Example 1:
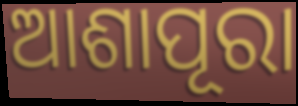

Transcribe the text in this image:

ଆଶାପୂରା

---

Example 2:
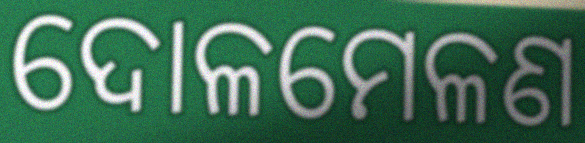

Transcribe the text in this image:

ଦୋଳମେଳଣ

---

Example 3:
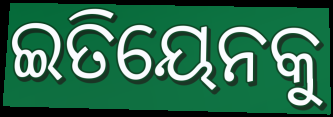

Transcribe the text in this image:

ଇତିୟେନକୁ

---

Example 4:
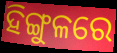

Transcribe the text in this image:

ହିଙ୍ଗୁଳରେ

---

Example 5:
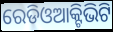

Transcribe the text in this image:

ରେଡିଓଆକ୍ଟିଭିଟି